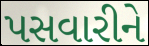
પસવારીને